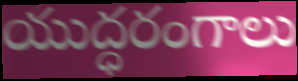
యుద్ధరంగాలు